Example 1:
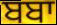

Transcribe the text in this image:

ਬਬਾ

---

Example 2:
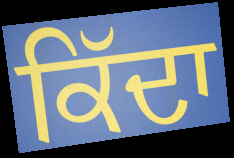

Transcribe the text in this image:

ਕਿੱਦਾ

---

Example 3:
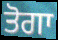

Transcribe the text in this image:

ਤੋਗਾ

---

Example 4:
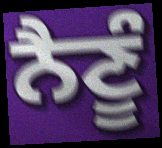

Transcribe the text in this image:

ਨੈਣੂੰ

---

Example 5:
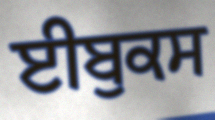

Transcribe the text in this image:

ਈਬੁਕਸ